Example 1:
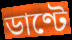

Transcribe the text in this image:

ডাণ্টে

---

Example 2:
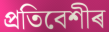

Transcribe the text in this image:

প্ৰতিবেশীৰ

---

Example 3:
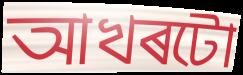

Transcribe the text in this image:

আখৰটো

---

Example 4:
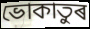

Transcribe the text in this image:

ভোকাতুৰ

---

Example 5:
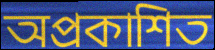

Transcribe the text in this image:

অপ্ৰকাশিত